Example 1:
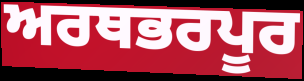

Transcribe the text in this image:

ਅਰਥਭਰਪੂਰ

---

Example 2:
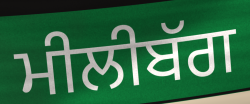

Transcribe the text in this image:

ਮੀਲੀਬੱਗ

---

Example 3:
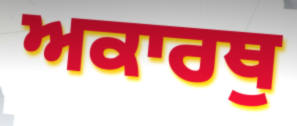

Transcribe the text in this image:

ਅਕਾਰਥੁ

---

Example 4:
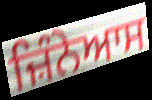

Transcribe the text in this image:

ਜ਼ਿੰਨੇਆਸ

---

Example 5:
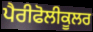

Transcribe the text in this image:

ਪੈਰੀਫੋਲੀਕੂਲਰ